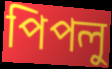
পিপলু